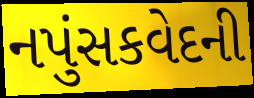
નપુંસકવેદની